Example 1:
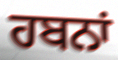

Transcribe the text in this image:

ਹਬਨਾਂ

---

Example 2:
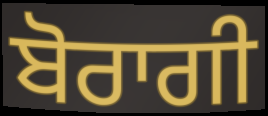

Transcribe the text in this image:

ਬੋਰਾਗੀ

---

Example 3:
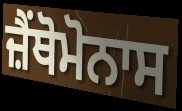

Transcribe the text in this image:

ਜ਼ੈਂਥੋਮੋਨਾਸ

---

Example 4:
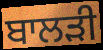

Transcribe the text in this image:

ਬਾਲੜੀ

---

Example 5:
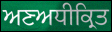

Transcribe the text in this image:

ਅਣਅਧੀਕ੍ਰਿਤ